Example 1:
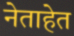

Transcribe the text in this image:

नेताहेत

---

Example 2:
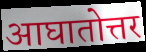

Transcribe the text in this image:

आघातोत्तर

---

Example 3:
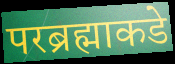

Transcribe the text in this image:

परब्रह्माकडे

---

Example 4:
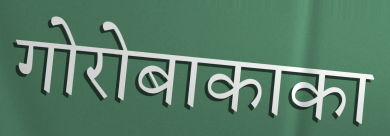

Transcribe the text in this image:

गोरोबाकाका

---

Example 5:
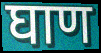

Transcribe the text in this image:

घाण